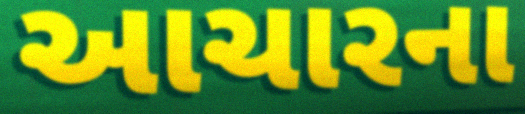
આચારના